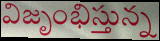
విజృంభిస్తున్న